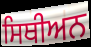
ਸਿਥੀਅਨ